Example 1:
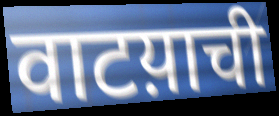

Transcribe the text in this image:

वाटय़ाची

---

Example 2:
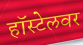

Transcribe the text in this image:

हॉस्टेलवर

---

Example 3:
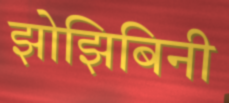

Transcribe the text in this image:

झोझिबिनी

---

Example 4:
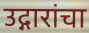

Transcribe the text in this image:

उद्गारांचा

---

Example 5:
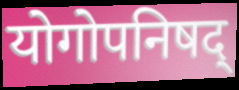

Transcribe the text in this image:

योगोपनिषद्